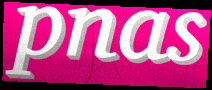
pnas